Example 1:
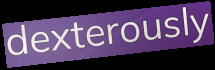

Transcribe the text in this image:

dexterously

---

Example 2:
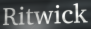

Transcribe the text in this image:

Ritwick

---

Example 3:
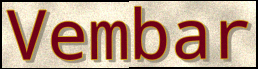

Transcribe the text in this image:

Vembar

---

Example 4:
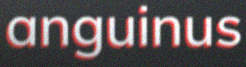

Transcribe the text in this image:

anguinus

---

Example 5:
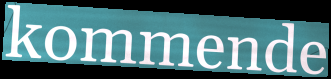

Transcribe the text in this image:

kommende